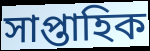
সাপ্তাহিক